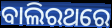
ବାଲିରଥରେ